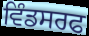
ਵਿੰਡਸਰਫ